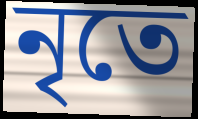
নৃতে